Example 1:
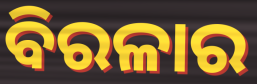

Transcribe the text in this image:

ବିରଳାର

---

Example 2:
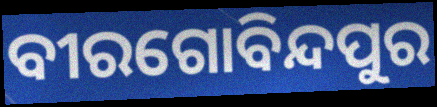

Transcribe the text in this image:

ବୀରଗୋବିନ୍ଦପୁର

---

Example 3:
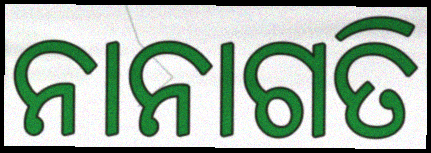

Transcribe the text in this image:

ନାନାଗତି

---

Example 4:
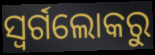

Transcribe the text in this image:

ସ୍ଵର୍ଗଲୋକରୁ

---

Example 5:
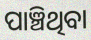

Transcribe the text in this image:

ପାଞ୍ଚିଥିବା